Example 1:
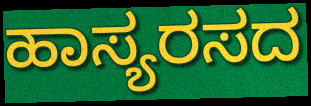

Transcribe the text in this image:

ಹಾಸ್ಯರಸದ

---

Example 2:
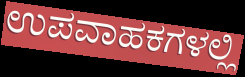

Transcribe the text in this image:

ಉಪವಾಹಕಗಳಲ್ಲಿ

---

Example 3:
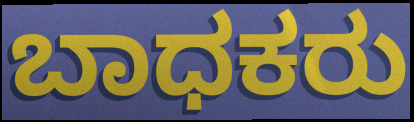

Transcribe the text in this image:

ಬಾಧಕರು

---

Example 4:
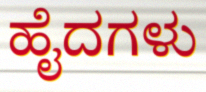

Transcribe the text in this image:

ಹೈದಗಳು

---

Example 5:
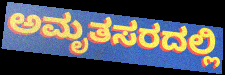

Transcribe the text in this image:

ಅಮೃತಸರದಲ್ಲಿ